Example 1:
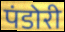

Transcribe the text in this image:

पंडोरी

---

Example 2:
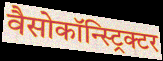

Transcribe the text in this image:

वैसोकॉन्स्ट्रिक्टर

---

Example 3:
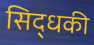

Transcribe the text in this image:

सिद्धकी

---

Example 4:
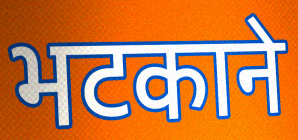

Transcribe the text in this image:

भटकाने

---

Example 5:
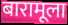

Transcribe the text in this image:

बारामूला